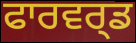
ਫਾਰਵਰ੍ਡ